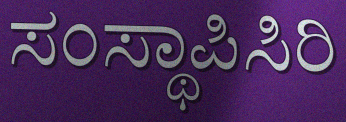
ಸಂಸ್ಥಾಪಿಸಿರಿ